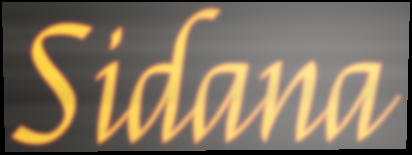
Sidana